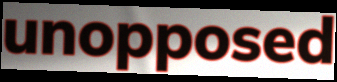
unopposed